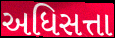
અધિસત્તા